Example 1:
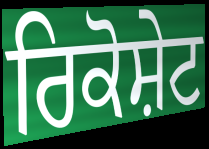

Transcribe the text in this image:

ਰਿਕੋਸ਼ੇਟ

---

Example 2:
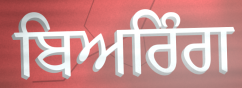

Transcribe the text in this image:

ਬਿਅਰਿੰਗ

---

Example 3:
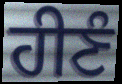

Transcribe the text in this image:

ਹੀਣੰ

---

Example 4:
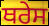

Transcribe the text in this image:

ਥਰੇਸ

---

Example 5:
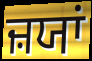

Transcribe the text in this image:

ਜ਼ਯਾਂ